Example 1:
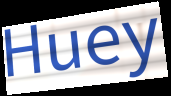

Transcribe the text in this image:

Huey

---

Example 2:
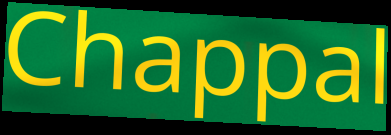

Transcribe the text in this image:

Chappal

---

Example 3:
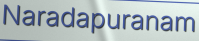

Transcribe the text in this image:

Naradapuranam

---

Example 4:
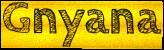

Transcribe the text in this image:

Gnyana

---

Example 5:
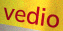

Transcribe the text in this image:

vedio